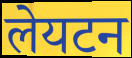
लेयटन